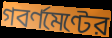
গবর্ণমেণ্টের